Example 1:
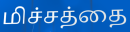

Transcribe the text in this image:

மிச்சத்தை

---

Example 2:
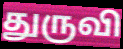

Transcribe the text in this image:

துருவி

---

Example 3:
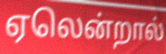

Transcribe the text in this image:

ஏலென்றால்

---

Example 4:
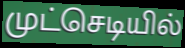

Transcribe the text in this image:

முட்செடியில்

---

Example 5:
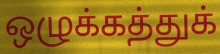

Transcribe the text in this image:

ஒழுக்கத்துக்